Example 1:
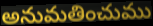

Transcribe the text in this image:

అనుమతించుము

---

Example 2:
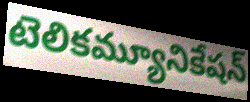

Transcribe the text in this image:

టెలికమ్యూనికేషన్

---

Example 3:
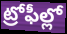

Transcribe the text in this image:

ట్రోఫీల్లో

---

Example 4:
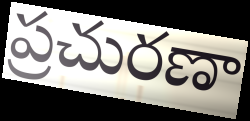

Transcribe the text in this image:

ప్రచురణా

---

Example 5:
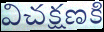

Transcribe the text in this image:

విచక్షణకి